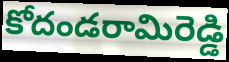
కోదండరామిరెడ్డి